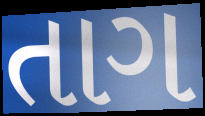
તાગ